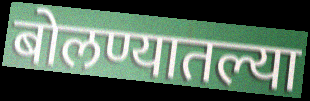
बोलण्यातल्या